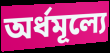
অর্ধমূল্যে